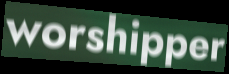
worshipper